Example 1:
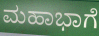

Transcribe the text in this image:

ಮಹಾಭಾಗೆ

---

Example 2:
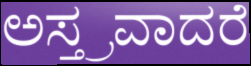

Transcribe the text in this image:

ಅಸ್ತ್ರವಾದರೆ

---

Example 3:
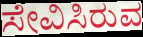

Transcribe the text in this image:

ಸೇವಿಸಿರುವ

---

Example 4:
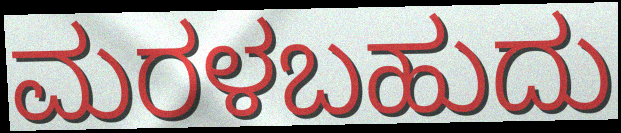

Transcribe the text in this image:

ಮರಳಬಹುದು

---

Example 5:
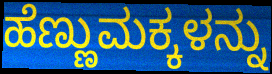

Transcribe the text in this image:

ಹೆಣ್ಣುಮಕ್ಕಳನ್ನು